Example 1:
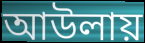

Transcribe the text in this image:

আউলায়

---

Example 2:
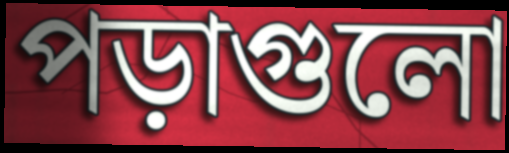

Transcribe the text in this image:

পড়াগুলো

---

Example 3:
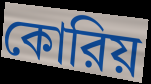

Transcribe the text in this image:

কোরিয়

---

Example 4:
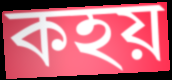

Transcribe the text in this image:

কহয়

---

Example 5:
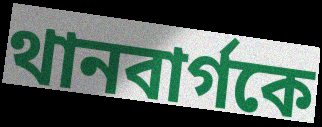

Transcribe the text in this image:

থানবার্গকে